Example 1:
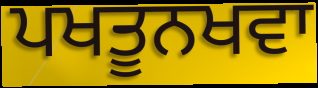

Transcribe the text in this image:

ਪਖਤੂਨਖਵਾ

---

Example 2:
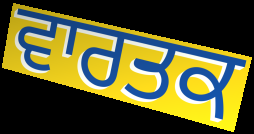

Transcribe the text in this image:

ਵਾਰਤਕ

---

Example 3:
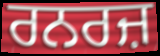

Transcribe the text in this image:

ਰਨਰਜ਼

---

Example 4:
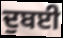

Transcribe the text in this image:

ਦੁਬਈ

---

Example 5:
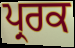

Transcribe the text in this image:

ਪ੍ਰਰਕ